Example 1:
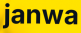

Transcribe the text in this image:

janwa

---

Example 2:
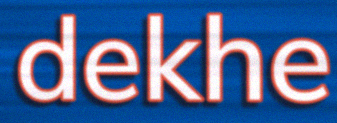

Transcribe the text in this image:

dekhe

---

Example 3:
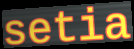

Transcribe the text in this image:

setia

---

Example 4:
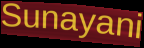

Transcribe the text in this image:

Sunayani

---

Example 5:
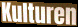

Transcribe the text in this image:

Kulturen